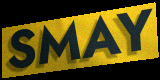
SMAY